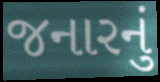
જનારનું